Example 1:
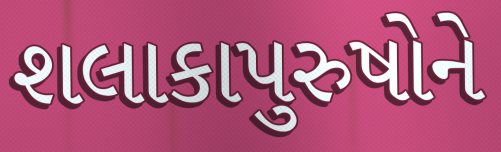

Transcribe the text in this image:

શલાકાપુરુષોને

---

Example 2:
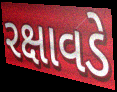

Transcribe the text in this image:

રક્ષાવડે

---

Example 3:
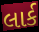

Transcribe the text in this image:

લાર્ક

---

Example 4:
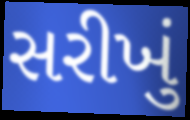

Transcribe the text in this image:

સરીખું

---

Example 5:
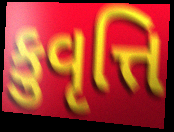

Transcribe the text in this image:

કુવૃત્તિ